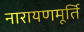
नारायणमूर्ति